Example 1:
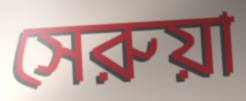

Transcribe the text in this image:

সেরুয়া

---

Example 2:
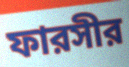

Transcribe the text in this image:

ফারসীর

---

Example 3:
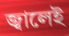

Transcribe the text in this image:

জ্বালেই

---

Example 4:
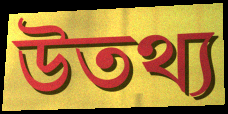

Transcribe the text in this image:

উতথ্য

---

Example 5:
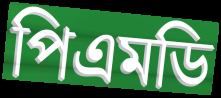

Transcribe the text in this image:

পিএমডি